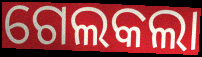
ଗେଲକଲା